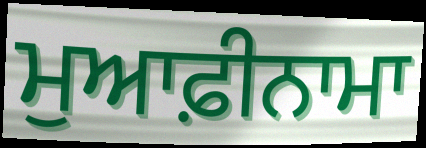
ਮੁਆਫ਼ੀਨਾਮਾ